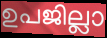
ഉപജില്ലാ